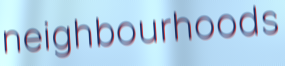
neighbourhoods